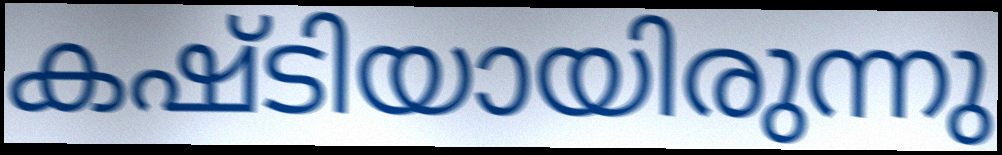
കഷ്ടിയായിരുന്നു